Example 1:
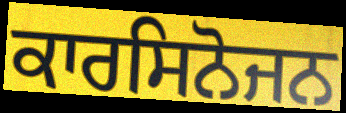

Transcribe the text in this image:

ਕਾਰਸਿਨੋਜਨ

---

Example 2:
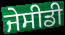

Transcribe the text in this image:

ਜੇਸੀਡੀ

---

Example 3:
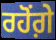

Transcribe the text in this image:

ਰਹੋਂਗ਼ੇ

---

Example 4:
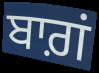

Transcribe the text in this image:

ਬਾਗ਼ਂ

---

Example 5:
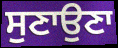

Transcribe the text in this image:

ਸੁਣਾਉਣਾ